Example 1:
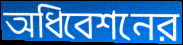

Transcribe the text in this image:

অধিবেশনের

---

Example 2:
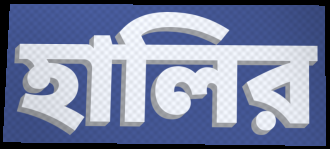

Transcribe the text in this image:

হালির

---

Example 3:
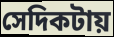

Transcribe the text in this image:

সেদিকটায়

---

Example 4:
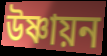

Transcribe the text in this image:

উষ্ণায়ন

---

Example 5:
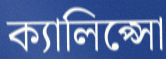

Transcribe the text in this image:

ক্যালিপ্সো